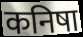
कनिषा